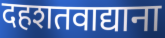
दहशतवाद्याना